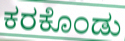
ಕರಕೊಂಡು